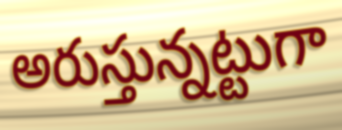
అరుస్తున్నట్టుగా